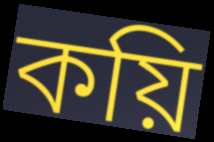
কয়ি